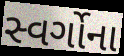
સ્વર્ગોના